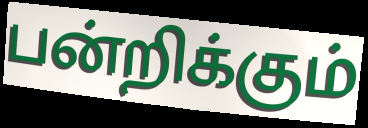
பன்றிக்கும்